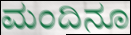
ಮಂದಿನೂ